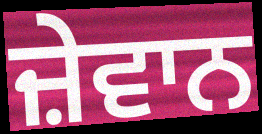
ਜ਼ੇਵਾਨ